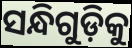
ସନ୍ଧିଗୁଡ଼ିକୁ